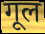
गूल